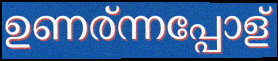
ഉണര്ന്നപ്പോള്